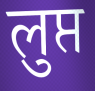
लुप्त